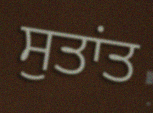
ਸੁਤਾਂਤ